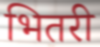
भितरी